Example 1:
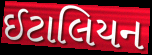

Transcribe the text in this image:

ઈટાલિયન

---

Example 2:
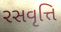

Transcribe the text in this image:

રસવૃત્તિ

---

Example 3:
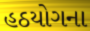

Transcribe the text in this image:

હઠયોગના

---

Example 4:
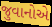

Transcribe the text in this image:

જુવાનોએ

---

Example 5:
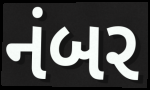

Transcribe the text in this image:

નંબર